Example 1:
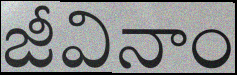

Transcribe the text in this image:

జీవినాం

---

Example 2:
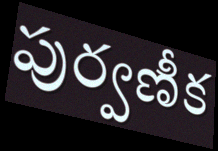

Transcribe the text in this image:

పుర్వణీక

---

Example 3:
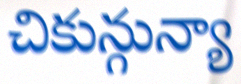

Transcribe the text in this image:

చికున్గున్యా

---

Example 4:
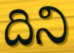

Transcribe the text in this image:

దిని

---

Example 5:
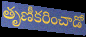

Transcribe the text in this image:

తృణీకరించాడో